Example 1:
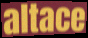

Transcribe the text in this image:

altace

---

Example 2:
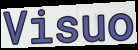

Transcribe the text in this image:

Visuo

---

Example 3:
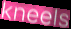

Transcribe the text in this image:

kneels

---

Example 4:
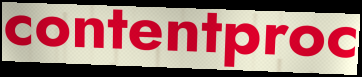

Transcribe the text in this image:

contentproc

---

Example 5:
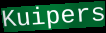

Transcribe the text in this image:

Kuipers